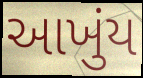
આખુંય